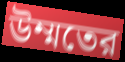
উম্মতের